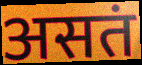
असतं